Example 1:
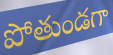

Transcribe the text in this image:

పోతుండగా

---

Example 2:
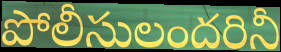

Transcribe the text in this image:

పోలీసులందరినీ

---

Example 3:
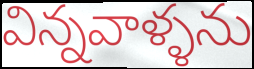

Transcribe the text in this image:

విన్నవాళ్ళను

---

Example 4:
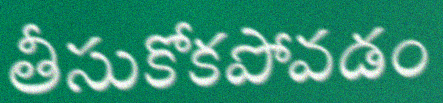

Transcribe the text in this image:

తీసుకోకపోవడం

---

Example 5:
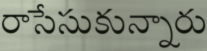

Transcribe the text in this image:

రాసేసుకున్నారు